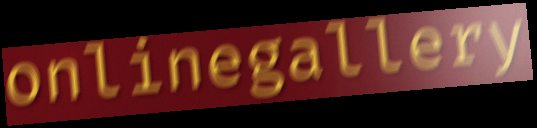
onlinegallery